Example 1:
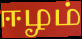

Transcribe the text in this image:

ஈழம்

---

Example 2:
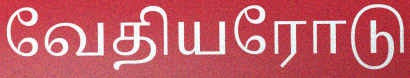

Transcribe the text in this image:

வேதியரோடு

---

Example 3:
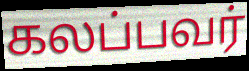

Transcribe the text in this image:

கலப்பவர்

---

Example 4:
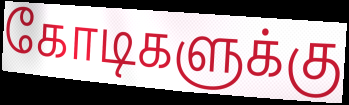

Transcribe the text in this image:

கோடிகளுக்கு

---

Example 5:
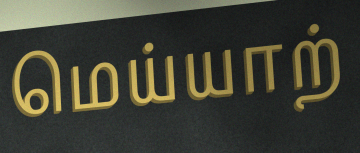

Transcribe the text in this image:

மெய்யாற்